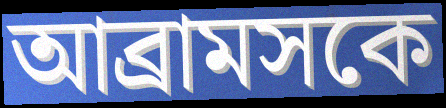
আব্রামসকে